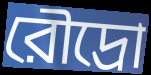
রৌদ্রো